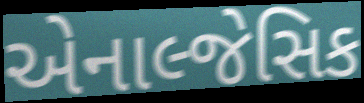
એનાલ્જેસિક